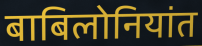
बाबिलोनियांत